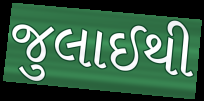
જુલાઈથી